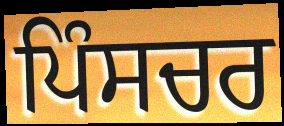
ਪਿੰਸਚਰ